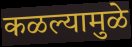
कळल्यामुळे